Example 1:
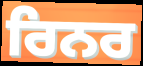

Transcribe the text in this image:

ਰਿਨਰ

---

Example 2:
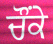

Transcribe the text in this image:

ਚੌਂਕੇ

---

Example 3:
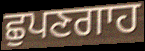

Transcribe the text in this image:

ਛੁਪਣਗਾਹ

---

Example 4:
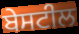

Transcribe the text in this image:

ਬੇਸਟੀਲ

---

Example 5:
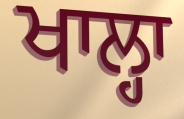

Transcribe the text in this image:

ਖਾਲ੍ਹਾ